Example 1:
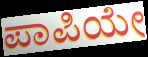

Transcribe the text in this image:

ಪಾಪಿಯೇ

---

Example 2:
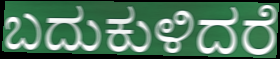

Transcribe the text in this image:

ಬದುಕುಳಿದರೆ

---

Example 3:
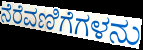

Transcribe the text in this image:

ನೆರೆವಣಿಗೆಗಳನು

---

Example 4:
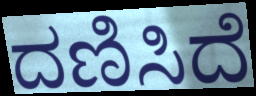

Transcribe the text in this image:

ದಣಿಸಿದೆ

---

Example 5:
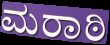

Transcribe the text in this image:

ಮರಾಠಿ